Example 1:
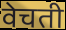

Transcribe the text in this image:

वेचती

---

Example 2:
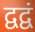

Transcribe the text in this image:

द्वद्वं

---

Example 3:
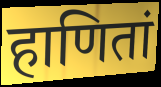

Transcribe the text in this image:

हाणितां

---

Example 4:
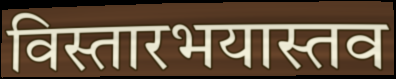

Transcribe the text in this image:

विस्तारभयास्तव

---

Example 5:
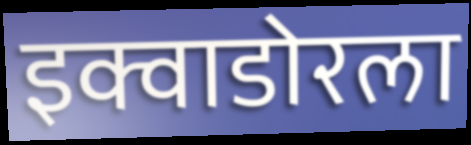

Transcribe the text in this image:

इक्वाडोरला